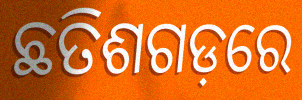
ଛତିଶଗଡ଼ରେ